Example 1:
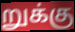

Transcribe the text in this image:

றுக்கு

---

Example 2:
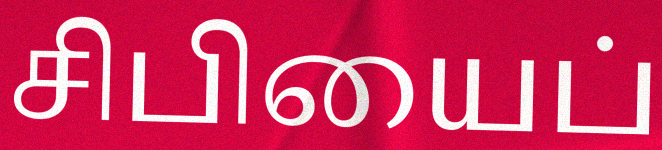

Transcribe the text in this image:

சிபியைப்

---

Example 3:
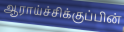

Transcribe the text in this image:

ஆராய்ச்சிக்குப்பின்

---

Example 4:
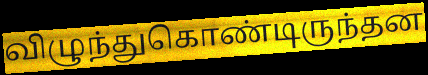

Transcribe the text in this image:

விழுந்துகொண்டிருந்தன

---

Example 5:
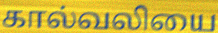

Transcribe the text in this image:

கால்வலியை